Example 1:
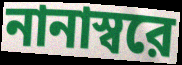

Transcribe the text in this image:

নানাস্বরে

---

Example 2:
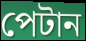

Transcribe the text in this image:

পেটান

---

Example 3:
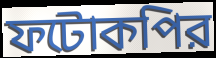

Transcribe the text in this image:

ফটোকপির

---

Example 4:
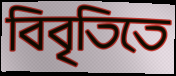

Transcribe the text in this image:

বিবৃতিতে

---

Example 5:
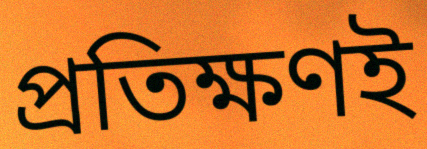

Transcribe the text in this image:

প্রতিক্ষণই